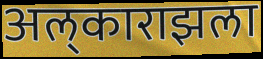
अल्काराझला